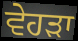
ਵੇਹੜਾ